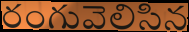
రంగువెలిసిన